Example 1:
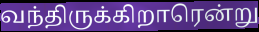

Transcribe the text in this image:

வந்திருக்கிறாரென்று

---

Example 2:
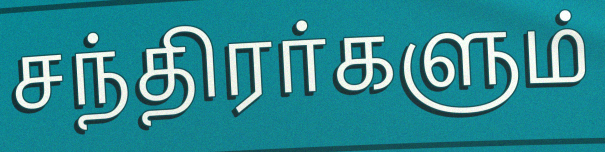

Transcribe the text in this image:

சந்திரர்களும்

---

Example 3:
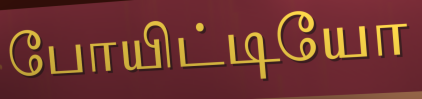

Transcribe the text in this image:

போயிட்டியோ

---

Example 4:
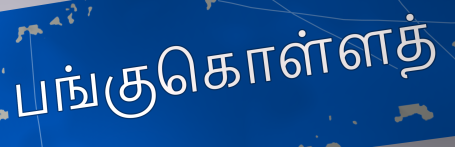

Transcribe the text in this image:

பங்குகொள்ளத்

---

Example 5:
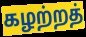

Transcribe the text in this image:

கழற்றத்